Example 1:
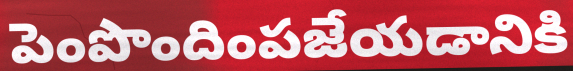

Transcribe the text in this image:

పెంపొందింపజేయడానికి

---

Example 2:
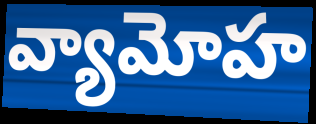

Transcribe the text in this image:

వ్యామోహ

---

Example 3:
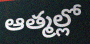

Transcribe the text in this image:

ఆత్మల్లో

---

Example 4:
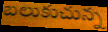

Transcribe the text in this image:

బలుకుచున్న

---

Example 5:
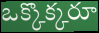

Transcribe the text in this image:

ఒక్కొక్కరూ